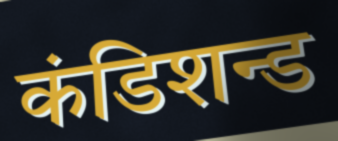
कंडिशन्ड